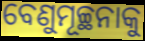
ବେଣୁମୂଚ୍ଛନାକୁ